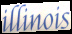
illinois